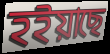
হইয়াছে